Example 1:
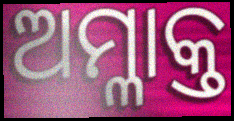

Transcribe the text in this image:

ଅମ୍ଳାକ୍ତ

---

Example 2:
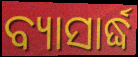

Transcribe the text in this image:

ବ୍ୟାସାର୍ଦ୍ଧ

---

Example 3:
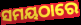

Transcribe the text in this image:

ସମୟଠାରେ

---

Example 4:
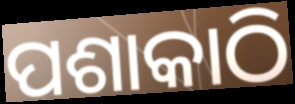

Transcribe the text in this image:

ପଶାକାଠି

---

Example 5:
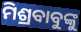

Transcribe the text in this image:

ମିଶ୍ରବାବୁଙ୍କୁ